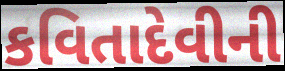
કવિતાદેવીની